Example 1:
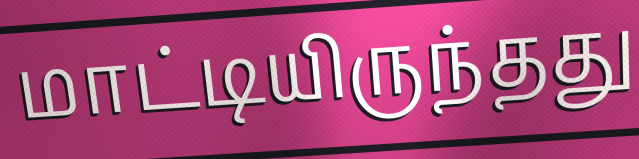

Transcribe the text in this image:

மாட்டியிருந்தது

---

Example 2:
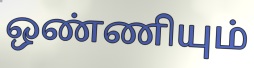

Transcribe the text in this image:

ஒண்ணியும்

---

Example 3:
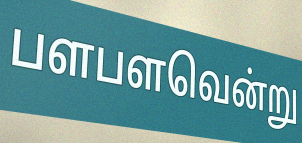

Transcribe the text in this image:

பளபளவென்று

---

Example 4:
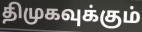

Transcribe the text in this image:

திமுகவுக்கும்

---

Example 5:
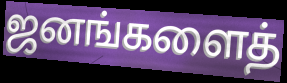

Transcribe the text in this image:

ஜனங்களைத்